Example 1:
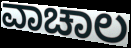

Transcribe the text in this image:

ವಾಚಾಲ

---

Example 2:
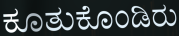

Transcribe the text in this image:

ಕೂತುಕೊಂಡಿರು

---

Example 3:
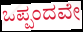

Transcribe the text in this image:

ಒಪ್ಪಂದವೇ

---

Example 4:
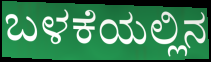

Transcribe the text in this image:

ಬಳಕೆಯಲ್ಲಿನ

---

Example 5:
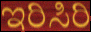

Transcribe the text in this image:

ಇರಿಸಿರಿ